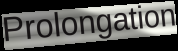
Prolongation